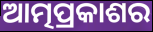
ଆତ୍ମପ୍ରକାଶର